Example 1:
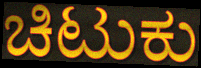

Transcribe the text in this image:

ಚಿಟುಕು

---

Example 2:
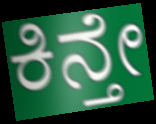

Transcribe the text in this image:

ಕಿನ್ತೇ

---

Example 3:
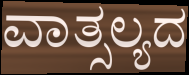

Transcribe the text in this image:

ವಾತ್ಸಲ್ಯದ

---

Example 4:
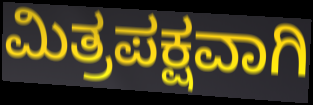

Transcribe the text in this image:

ಮಿತ್ರಪಕ್ಷವಾಗಿ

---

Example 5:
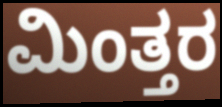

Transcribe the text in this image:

ಮಿಂತ್ತರ